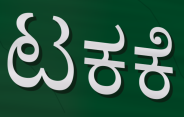
ಟಕಕೆ